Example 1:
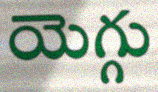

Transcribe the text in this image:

యెగ్గు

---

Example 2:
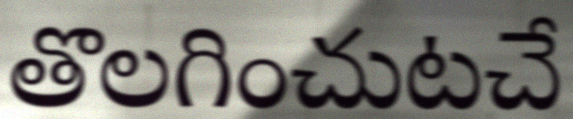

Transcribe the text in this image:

తొలగించుటచే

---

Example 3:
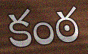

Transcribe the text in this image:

కంఠ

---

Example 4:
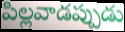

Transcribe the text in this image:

పిల్లవాడప్పుడు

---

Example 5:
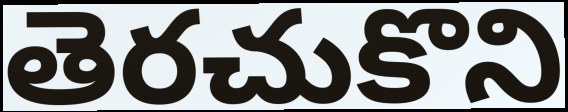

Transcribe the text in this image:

తెరచుకొని